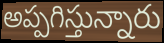
అప్పగిస్తున్నారు